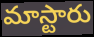
మాస్టారు